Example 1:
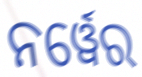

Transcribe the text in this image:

ନର୍ୱେର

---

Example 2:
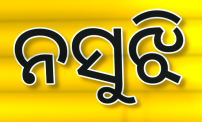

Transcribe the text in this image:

ନସୁଝି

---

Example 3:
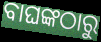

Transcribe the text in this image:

ବାଘଙ୍କଠାରୁ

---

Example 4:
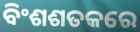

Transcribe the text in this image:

ବିଂଶଶତକରେ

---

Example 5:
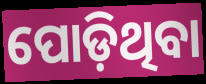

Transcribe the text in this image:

ପୋଡ଼ିଥିବା